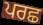
ਪਰਛ